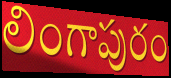
లింగాపురం